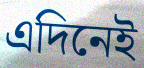
এদিনেই